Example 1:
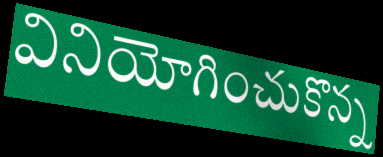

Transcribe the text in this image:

వినియోగించుకొన్న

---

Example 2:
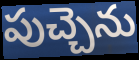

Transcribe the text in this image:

పుచ్చెను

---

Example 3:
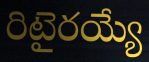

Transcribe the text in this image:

రిటైరయ్యే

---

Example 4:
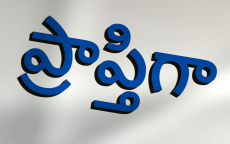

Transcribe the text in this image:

ప్రాప్తిగా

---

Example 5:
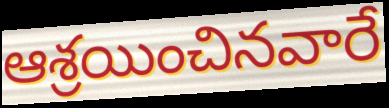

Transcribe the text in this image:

ఆశ్రయించినవారే